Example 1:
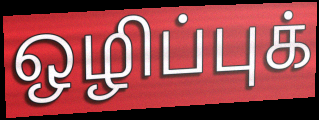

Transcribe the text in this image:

ஒழிப்புக்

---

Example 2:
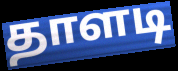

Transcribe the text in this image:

தாளடி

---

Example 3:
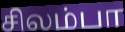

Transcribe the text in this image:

சிலம்பா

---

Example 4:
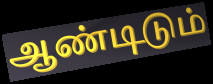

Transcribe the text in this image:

ஆண்டிடும்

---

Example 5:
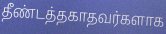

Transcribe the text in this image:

தீண்டத்தகாதவர்களாக